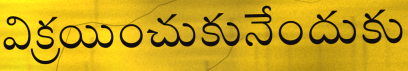
విక్రయించుకునేందుకు